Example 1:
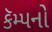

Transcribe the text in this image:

કૅમ્પનો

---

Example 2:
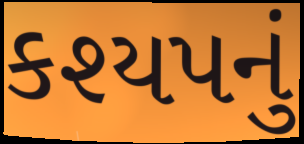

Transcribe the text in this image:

કશ્યપનું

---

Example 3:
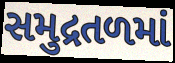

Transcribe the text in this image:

સમુદ્રતળમાં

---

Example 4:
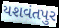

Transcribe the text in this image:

યશવંતપુર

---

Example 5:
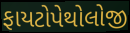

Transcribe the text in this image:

ફાયટોપેથોલોજી